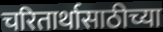
चरितार्थासाठीच्या